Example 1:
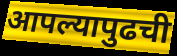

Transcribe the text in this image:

आपल्यापुढची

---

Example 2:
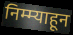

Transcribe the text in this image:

निम्म्याहून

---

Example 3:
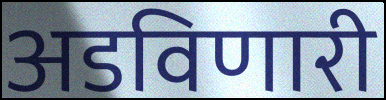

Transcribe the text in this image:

अडविणारी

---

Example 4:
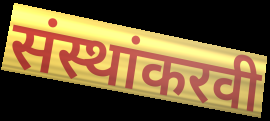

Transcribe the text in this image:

संस्थांकरवी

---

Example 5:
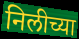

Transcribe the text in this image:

निलीच्या